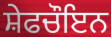
ਸ਼ੇਫਚੌਇਨ